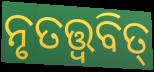
ନୃତତ୍ତ୍ୱବିତ୍